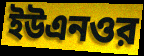
ইউএনওর